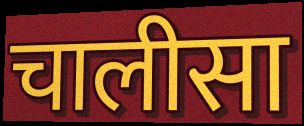
चालीसा